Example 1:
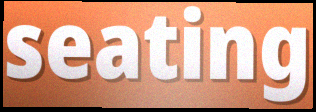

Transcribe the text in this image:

seating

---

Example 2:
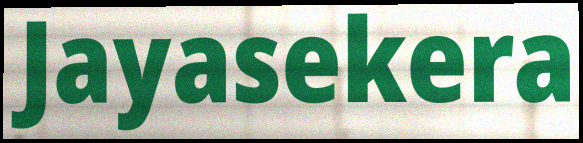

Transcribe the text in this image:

Jayasekera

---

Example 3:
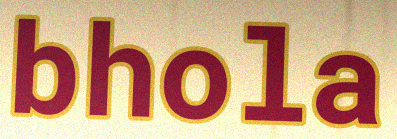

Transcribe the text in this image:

bhola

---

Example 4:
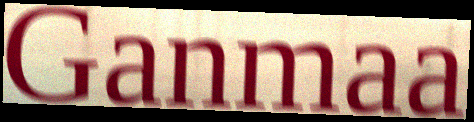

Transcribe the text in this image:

Ganmaa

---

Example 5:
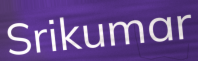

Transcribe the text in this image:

Srikumar